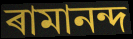
ৰামানন্দ